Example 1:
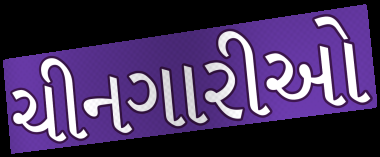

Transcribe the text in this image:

ચીનગારીઓ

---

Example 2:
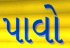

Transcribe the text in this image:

પાવો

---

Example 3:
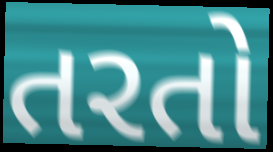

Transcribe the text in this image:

તરતો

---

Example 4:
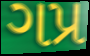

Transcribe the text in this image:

ગપ્ર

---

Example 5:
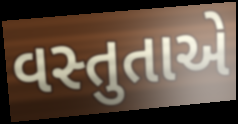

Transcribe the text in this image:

વસ્તુતાએ